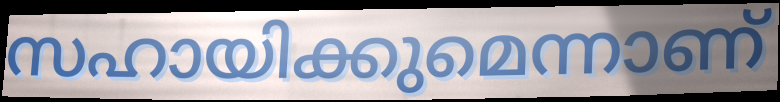
സഹായിക്കുമെന്നാണ്